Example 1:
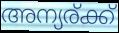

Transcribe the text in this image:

അന്യര്ക്ക്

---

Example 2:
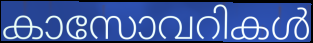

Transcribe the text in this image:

കാസോവറികൾ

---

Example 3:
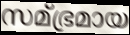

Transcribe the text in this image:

സമ്ഭ്രമായ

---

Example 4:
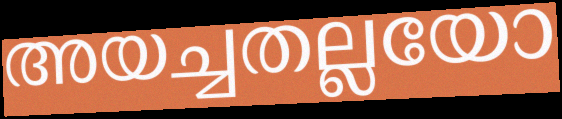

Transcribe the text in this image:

അയച്ചതല്ലയോ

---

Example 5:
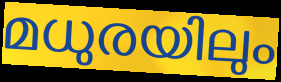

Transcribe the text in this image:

മധുരയിലും